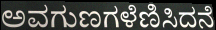
ಅವಗುಣಗಳೆಣಿಸಿದನೆ